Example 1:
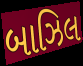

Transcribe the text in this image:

બાઝિલ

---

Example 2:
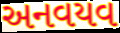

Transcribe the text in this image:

અનવયવ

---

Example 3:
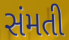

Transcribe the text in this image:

સંમતી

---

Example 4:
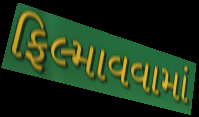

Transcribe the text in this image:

ફિલ્માવવામાં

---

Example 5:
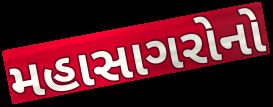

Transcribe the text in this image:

મહાસાગરોનો